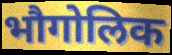
भौगोलिक